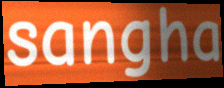
sangha